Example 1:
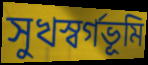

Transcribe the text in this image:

সুখস্বর্গভূমি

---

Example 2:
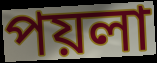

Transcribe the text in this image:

পয়লা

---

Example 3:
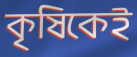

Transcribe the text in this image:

কৃষিকেই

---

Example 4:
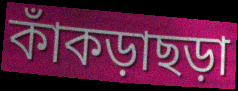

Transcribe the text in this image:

কাঁকড়াছড়া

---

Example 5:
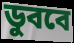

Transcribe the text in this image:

ডুববে